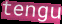
tengu